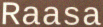
Raasa